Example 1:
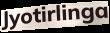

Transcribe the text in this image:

Jyotirlinga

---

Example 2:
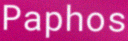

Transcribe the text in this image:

Paphos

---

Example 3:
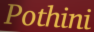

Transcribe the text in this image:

Pothini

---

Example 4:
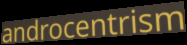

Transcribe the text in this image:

androcentrism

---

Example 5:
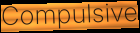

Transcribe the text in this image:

Compulsive